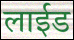
लाईड